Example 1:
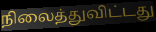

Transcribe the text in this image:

நிலைத்துவிட்டது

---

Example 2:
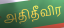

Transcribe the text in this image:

அதிதீவிர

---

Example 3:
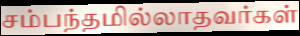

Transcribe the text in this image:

சம்பந்தமில்லாதவர்கள்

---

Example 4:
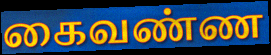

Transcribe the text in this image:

கைவண்ண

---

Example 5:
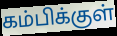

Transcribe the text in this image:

கம்பிக்குள்